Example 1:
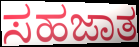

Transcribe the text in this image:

ಸಹಜಾತ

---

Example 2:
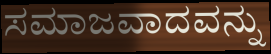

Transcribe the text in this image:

ಸಮಾಜವಾದವನ್ನು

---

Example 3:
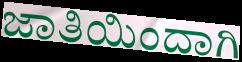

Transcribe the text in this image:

ಜಾತಿಯಿಂದಾಗಿ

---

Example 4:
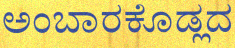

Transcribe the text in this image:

ಅಂಬಾರಕೊಡ್ಲದ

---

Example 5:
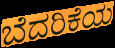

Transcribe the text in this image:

ಬೆದರಿಕೆಯ